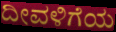
ದೀವಳಿಗೆಯ